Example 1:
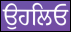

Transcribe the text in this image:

ਉਹਲਿਓ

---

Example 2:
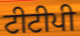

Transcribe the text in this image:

ਟੀਟੀਪੀ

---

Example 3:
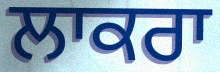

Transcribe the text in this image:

ਲਾਕਰਾ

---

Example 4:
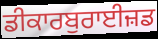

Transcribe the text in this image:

ਡੀਕਾਰਬੁਰਾਈਜ਼ਡ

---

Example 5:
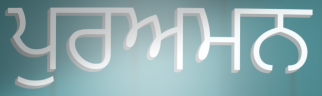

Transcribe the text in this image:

ਪੁਰਅਮਨ